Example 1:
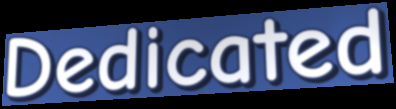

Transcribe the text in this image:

Dedicated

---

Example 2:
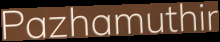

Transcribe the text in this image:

Pazhamuthir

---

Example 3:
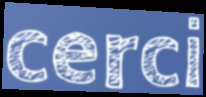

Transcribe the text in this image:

cerci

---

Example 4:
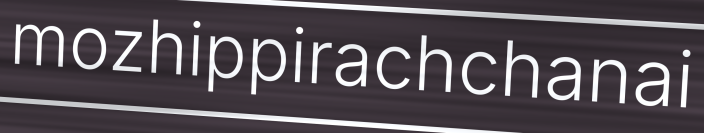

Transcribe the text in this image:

mozhippirachchanai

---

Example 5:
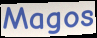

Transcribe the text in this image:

Magos